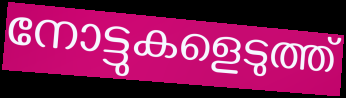
നോട്ടുകളെടുത്ത്